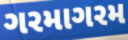
ગરમાગરમ